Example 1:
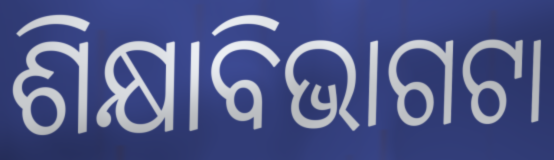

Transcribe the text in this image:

ଶିକ୍ଷାବିଭାଗଟା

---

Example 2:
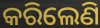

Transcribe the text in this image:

କରିଲେଣି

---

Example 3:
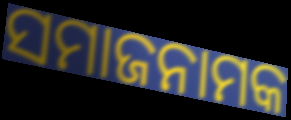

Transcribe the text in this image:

ସମାଜନାମକ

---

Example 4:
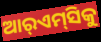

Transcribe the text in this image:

ଆର୍‌ଏମ୍‌ସିକୁ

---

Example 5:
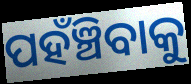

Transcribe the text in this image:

ପହଁଞ୍ଚିବାକୁ